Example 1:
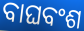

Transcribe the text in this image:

ବାଘବଂଶ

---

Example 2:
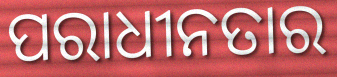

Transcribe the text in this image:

ପରାଧୀନତାର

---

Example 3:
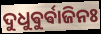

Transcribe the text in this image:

ଦୁଧୁଵୁର୍ଵାଜିନଃ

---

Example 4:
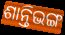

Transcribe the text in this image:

ଶାନ୍ତିଭଙ୍ଗ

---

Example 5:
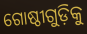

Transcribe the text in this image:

ଗୋଷ୍ଠୀଗୁଡ଼ିକୁ